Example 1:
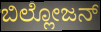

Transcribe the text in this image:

ಬಿಲ್ಲೋಜನ್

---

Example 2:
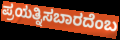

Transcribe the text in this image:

ಪ್ರಯತ್ನಿಸಬಾರದೆಂಬ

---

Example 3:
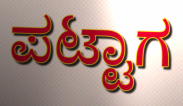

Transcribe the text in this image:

ಪಟ್ಟಾಗ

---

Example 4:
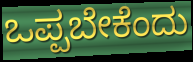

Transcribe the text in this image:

ಒಪ್ಪಬೇಕೆಂದು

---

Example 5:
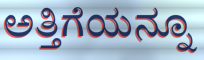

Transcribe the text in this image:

ಅತ್ತಿಗೆಯನ್ನೂ